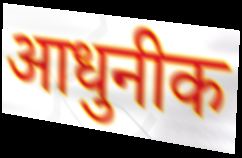
आधुनीक